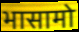
भासामो